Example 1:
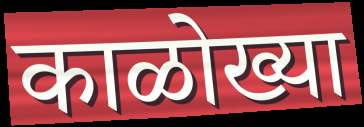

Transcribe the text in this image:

काळोख्या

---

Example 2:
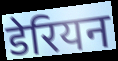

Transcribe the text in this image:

डेरियन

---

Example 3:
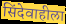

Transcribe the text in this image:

सिंदेवाहीला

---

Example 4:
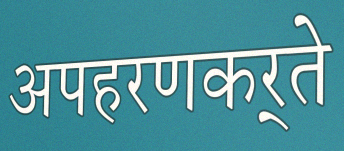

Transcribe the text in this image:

अपहरणकर्ते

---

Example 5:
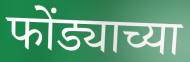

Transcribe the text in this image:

फोंड्याच्या